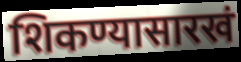
शिकण्यासारखं